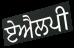
ਏਐਲਪੀ